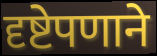
दृष्टेपणाने